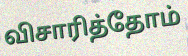
விசாரித்தோம்